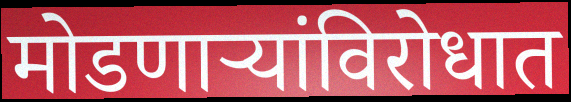
मोडणाऱ्यांविरोधात